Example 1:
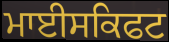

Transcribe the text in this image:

ਮਾਈਸਕਿਫਟ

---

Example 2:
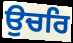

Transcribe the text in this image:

ਉਚਰਿ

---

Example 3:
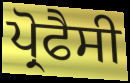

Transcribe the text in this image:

ਪ੍ਰੋਫੈਸੀ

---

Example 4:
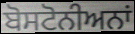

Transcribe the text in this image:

ਬੋਸਟੋਨੀਅਨਾਂ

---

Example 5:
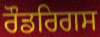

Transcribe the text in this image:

ਰੌਡਰਿਗਸ